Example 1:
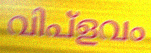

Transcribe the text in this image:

വിപ്ളവം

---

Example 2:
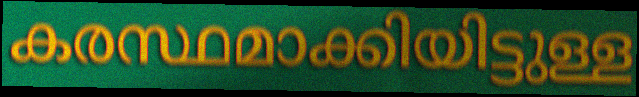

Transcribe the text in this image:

കരസ്ഥമാക്കിയിട്ടുള്ള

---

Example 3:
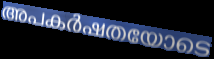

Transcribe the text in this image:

അപകർഷതയോടെ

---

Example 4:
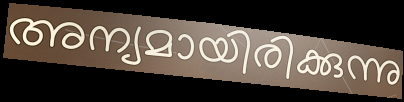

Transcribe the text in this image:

അന്യമായിരിക്കുന്നു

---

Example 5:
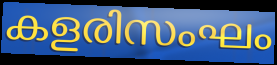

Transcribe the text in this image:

കളരിസംഘം